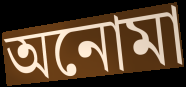
অনোমা